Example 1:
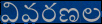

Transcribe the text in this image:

వివరణల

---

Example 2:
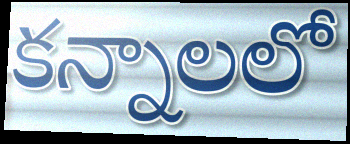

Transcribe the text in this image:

కన్నాలలో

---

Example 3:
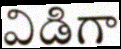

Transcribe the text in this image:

విడిగా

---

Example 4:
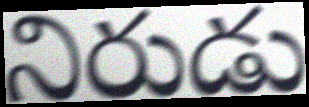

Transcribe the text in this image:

నిరుడు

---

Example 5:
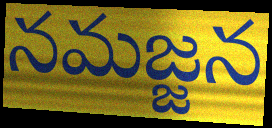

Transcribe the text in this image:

నమజ్జన